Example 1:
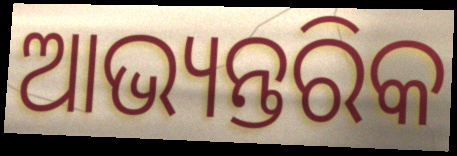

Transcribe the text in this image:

ଆଭ୍ୟନ୍ତରିକ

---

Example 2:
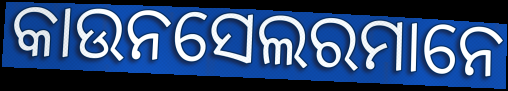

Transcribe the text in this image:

କାଉନସେଲରମାନେ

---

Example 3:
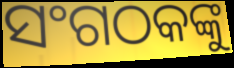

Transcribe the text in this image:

ସଂଗଠକଙ୍କୁ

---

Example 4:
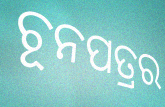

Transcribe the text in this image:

ଚୂନପତ୍ରର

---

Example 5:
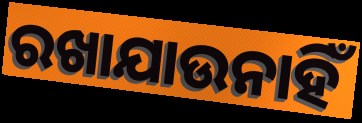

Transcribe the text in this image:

ରଖାଯାଉନାହିଁ